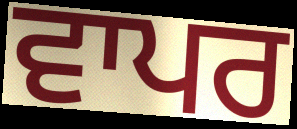
ਵਾਪਰ